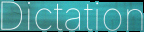
Dictation